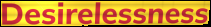
Desirelessness